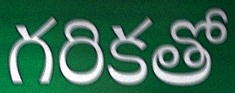
గరికతో